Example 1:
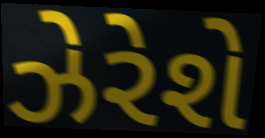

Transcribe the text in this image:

ઝેરેશે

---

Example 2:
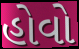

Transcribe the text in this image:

હોવો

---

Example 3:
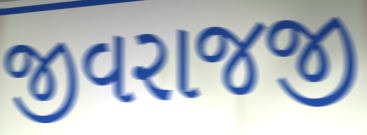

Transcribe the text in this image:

જીવરાજજી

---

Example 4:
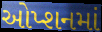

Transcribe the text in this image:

ઓપ્શનમાં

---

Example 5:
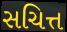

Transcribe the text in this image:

સચિત્ત